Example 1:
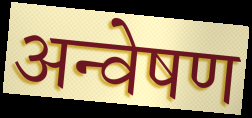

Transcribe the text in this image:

अन्वेषण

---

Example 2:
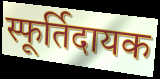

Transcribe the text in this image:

स्फूर्तिदायक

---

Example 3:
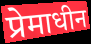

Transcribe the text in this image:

प्रेमाधीन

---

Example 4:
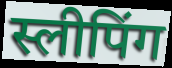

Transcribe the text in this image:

स्लीपिंग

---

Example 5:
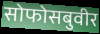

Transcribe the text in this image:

सोफोसबुवीर